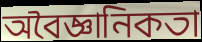
অবৈজ্ঞানিকতা